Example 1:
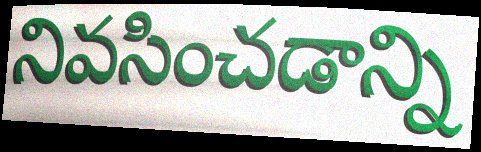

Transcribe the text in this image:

నివసించడాన్ని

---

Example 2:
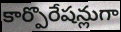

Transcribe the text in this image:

కార్పొరేషన్లుగా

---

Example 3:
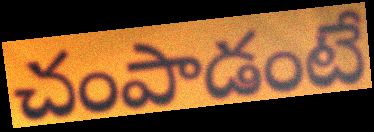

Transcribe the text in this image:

చంపాడంటే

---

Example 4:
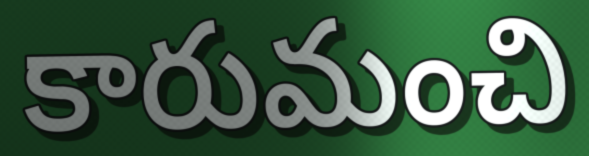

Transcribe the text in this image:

కారుమంచి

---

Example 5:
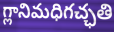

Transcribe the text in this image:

గ్లానిమధిగచ్ఛతి